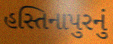
હસ્તિનાપુરનું